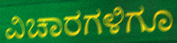
ವಿಚಾರಗಳಿಗೂ